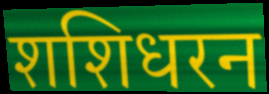
शशिधरन